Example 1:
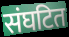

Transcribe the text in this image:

संघटित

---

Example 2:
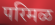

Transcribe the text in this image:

परिमळ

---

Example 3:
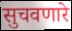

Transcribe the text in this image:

सुचवणारे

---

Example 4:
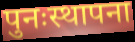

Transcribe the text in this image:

पुनःस्थापना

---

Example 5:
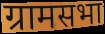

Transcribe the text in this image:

ग्रामसभा